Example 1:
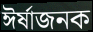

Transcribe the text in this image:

ঈর্ষাজনক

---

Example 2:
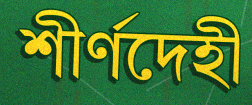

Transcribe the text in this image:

শীর্ণদেহী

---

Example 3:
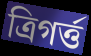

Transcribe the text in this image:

ত্রিগর্ত্ত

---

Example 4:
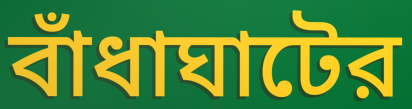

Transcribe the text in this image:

বাঁধাঘাটের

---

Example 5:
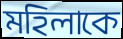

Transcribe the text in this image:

মহিলাকে